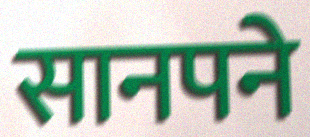
सानपने